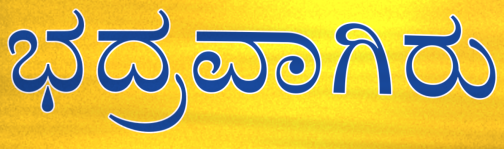
ಭದ್ರವಾಗಿರು